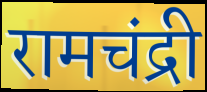
रामचंद्री